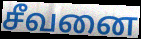
சீவனை